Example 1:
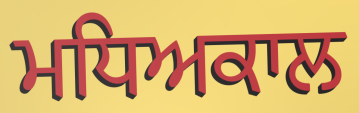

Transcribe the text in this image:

ਮਧਿਅਕਾਲ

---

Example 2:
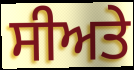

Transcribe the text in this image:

ਸੀਅਤੇ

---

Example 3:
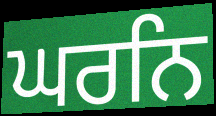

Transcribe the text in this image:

ਘਰਨਿ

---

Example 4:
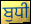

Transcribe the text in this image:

ਬੁਧੀ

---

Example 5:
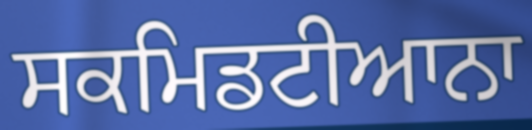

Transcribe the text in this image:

ਸਕਮਿਡਟੀਆਨਾ